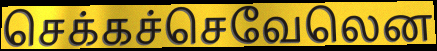
செக்கச்செவேலென